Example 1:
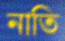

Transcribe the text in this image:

নাতি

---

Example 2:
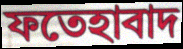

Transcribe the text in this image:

ফতেহাবাদ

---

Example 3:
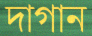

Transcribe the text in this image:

দাগান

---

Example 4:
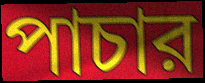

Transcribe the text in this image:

পাচার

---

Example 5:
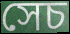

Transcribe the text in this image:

সেচ